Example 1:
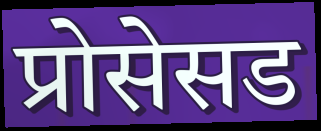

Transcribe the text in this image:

प्रोसेसड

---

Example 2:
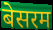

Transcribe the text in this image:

बेसरम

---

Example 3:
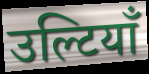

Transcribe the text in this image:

उल्टियाँ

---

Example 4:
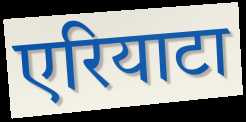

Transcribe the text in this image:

एरियाटा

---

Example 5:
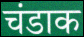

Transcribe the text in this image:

चंडाक